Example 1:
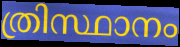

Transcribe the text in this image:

ത്രിസ്ഥാനം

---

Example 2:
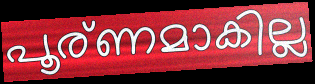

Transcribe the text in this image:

പൂര്ണമാകില്ല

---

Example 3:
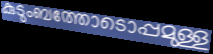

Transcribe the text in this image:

കുടുംബത്തോടൊപ്പമുള്ള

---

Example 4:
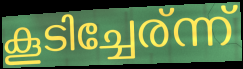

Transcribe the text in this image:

കൂടിച്ചേര്ന്ന്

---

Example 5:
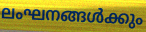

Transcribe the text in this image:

ലംഘനങ്ങൾക്കും